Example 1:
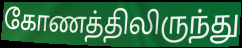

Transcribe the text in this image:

கோணத்திலிருந்து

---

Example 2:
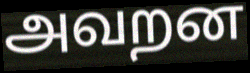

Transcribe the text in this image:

அவறன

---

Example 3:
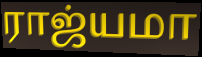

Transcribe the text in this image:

ராஜ்யமா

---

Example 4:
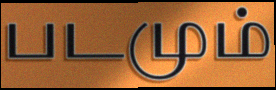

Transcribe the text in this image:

படமும்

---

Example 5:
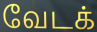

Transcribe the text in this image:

வேடக்